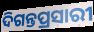
ଦିଗନ୍ତପ୍ରସାରୀ